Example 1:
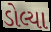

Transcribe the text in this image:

ડોલ્યા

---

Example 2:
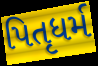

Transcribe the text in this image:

પિતૃધર્મ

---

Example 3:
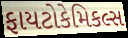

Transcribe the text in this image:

ફાયટોકેમિકલ્સ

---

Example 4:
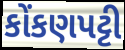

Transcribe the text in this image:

કોંકણપટ્ટી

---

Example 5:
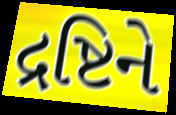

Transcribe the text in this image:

દ્રષ્ટિને